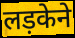
लड़केने